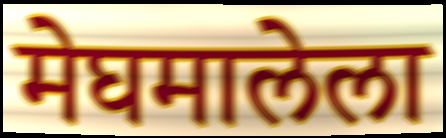
मेघमालेला